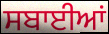
ਸਬਾਈਆਂ